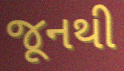
જૂનથી